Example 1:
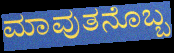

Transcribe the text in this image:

ಮಾವುತನೊಬ್ಬ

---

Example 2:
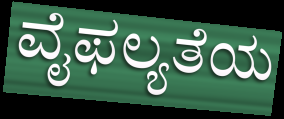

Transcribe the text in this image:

ವೈಫಲ್ಯತೆಯ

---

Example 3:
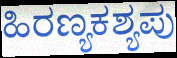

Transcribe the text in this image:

ಹಿರಣ್ಯಕಶ್ಯಪು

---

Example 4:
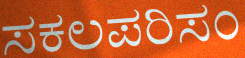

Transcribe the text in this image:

ಸಕಲಪರಿಸಂ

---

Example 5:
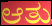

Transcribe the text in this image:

ಆತು